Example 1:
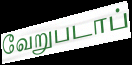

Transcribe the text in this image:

வேறுபடாப்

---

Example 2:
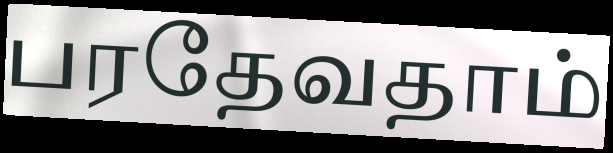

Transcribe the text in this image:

பரதேவதாம்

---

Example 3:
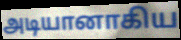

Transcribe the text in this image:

அடியானாகிய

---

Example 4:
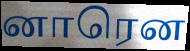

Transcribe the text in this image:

னாரென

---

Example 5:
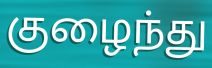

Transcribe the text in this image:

குழைந்து